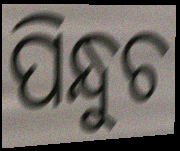
ପିନ୍ଧୁଚ